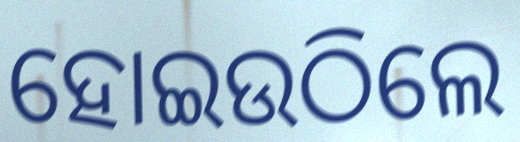
ହୋଇଉଠିଲେ